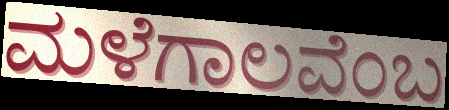
ಮಳೆಗಾಲವೆಂಬ